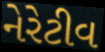
નેરેટીવ